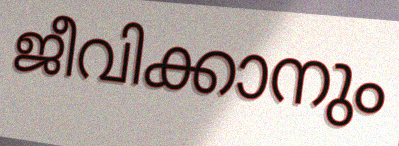
ജീവിക്കാനും